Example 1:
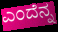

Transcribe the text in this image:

ಎಂದೆನ್ನ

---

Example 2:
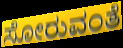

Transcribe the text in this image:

ಸೋರುವಂತೆ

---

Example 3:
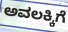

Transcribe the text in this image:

ಅವಲಕ್ಕಿಗೆ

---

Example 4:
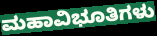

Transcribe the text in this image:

ಮಹಾವಿಭೂತಿಗಳು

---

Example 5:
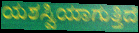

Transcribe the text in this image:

ಯಶಸ್ವಿಯಾಗುತ್ತಿದೆ